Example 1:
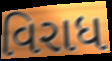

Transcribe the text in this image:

વિરાધ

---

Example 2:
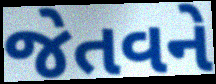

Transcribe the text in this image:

જેતવને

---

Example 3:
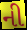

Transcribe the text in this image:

ની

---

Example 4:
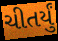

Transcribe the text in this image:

ચીતર્યું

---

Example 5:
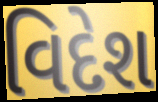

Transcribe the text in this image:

વિદેશ